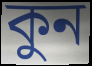
কুন